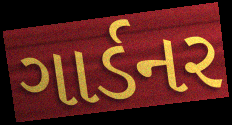
ગાર્ડનર